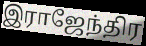
இராஜேந்திர